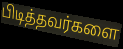
பிடித்தவர்களை